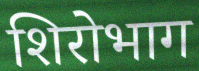
शिरोभाग